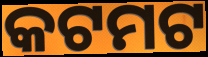
କଟମଟ